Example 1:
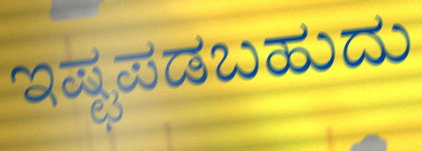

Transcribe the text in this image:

ಇಷ್ಟಪಡಬಹುದು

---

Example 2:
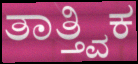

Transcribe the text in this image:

ತಾತ್ತ್ವಿಕ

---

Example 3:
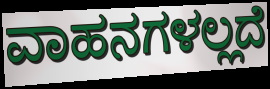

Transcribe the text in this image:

ವಾಹನಗಳಲ್ಲದೆ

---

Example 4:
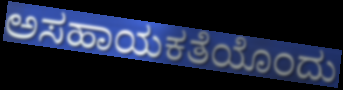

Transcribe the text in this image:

ಅಸಹಾಯಕತೆಯೊಂದು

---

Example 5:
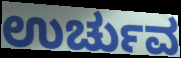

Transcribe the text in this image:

ಉರ್ಚುವ